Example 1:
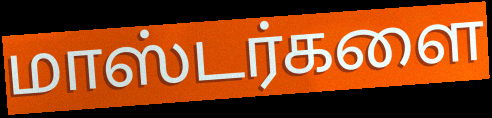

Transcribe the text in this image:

மாஸ்டர்களை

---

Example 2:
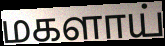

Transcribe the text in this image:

மகளாய்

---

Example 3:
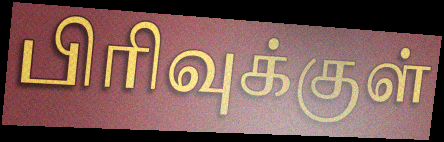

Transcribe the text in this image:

பிரிவுக்குள்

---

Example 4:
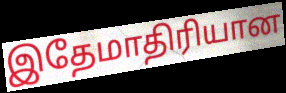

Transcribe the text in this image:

இதேமாதிரியான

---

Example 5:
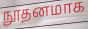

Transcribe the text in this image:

நூதனமாக